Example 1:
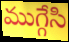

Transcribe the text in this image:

ముగ్గేసి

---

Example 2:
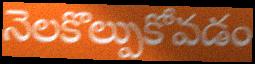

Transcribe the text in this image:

నెలకొల్పుకోవడం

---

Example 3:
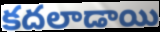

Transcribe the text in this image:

కదలాడాయి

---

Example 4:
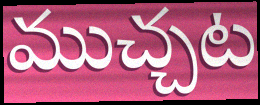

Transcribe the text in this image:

ముచ్చట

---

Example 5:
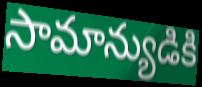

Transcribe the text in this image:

సామాన్యుడికి